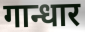
गान्धार